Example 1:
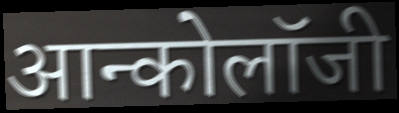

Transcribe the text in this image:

आन्कोलॉजी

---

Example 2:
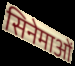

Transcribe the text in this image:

सिनेमाओं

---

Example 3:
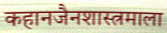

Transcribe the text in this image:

कहानजैनशास्त्रमाला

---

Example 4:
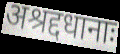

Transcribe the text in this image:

अश्रद्दधानाः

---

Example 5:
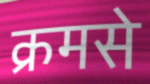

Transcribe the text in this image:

क्रमसे